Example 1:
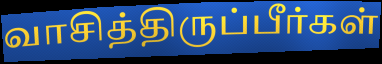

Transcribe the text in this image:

வாசித்திருப்பீர்கள்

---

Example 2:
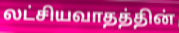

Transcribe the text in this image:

லட்சியவாதத்தின்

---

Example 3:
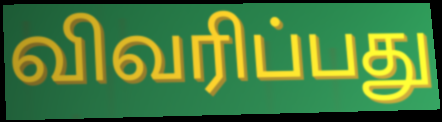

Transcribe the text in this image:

விவரிப்பது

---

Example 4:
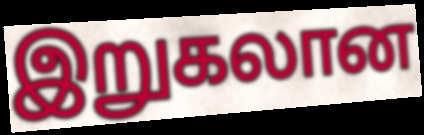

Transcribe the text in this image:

இறுகலான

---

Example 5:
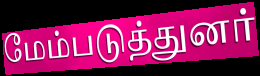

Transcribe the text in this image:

மேம்படுத்துனர்